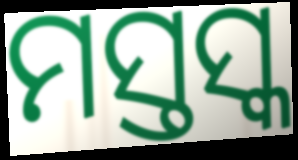
ମସ୍ତସ୍କ